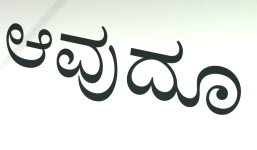
ಆವುದೂ